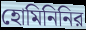
হোমিনিনির